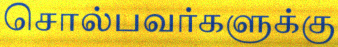
சொல்பவர்களுக்கு